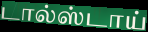
டால்ஸ்டாய்